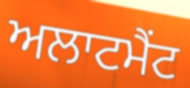
ਅਲਾਟਮੈਂਟ